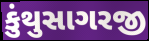
કુંથુસાગરજી